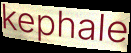
kephale